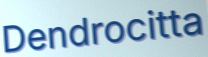
Dendrocitta